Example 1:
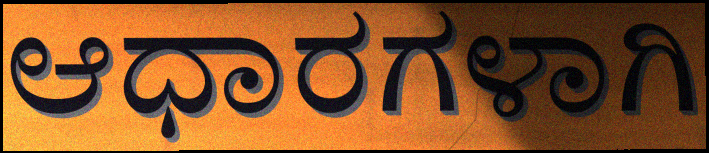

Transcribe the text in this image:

ಆಧಾರಗಳಾಗಿ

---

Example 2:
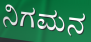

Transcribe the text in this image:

ನಿಗಮನ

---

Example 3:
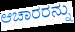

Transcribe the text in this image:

ಆಚಾರರನ್ನು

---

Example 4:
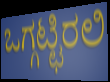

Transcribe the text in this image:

ಒಗ್ಗಟ್ಟಿರಲಿ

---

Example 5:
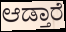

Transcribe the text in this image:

ಆಡ್ತಾರೆ